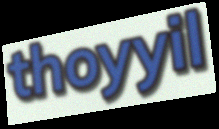
thoyyil